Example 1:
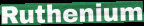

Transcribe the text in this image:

Ruthenium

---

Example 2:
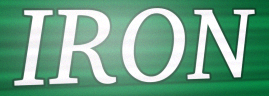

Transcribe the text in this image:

IRON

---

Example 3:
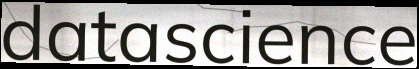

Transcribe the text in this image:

datascience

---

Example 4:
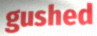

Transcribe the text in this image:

gushed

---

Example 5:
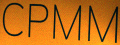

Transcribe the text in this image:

CPMM